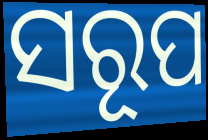
ସରୂପ